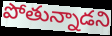
పోతున్నాడని